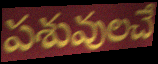
పశువులచే